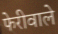
फेरीवाले